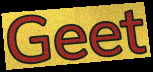
Geet